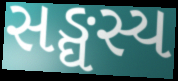
સઙ્ઘસ્ય